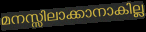
മനസ്സിലാക്കാനാകില്ല